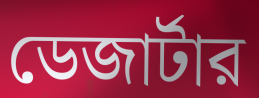
ডেজার্টার